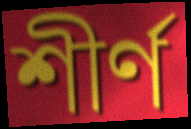
শীৰ্ণ